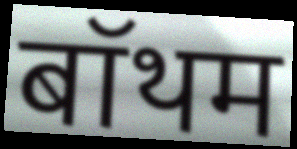
बॉथम